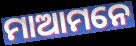
ମାଆମନେ